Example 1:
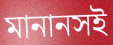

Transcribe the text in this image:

মানানসই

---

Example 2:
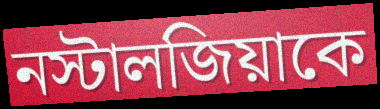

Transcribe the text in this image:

নস্টালজিয়াকে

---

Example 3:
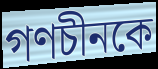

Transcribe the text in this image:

গণচীনকে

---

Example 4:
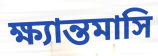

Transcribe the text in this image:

ক্ষ্যান্তমাসি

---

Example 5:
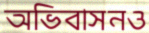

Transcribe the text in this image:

অভিবাসনও